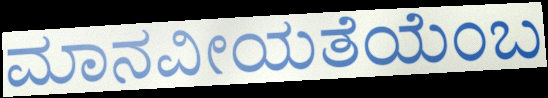
ಮಾನವೀಯತೆಯೆಂಬ